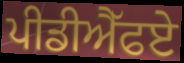
ਪੀਡੀਐੱਫਏ